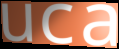
uca